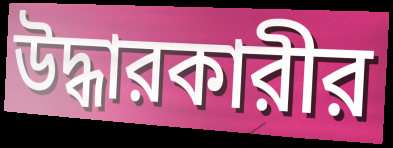
উদ্ধারকারীর